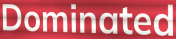
Dominated